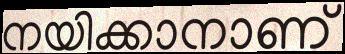
നയിക്കാനാണ്